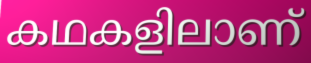
കഥകളിലാണ്